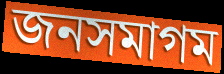
জনসমাগম